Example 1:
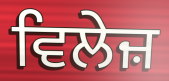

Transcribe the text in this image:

ਵਿਲੇਜ਼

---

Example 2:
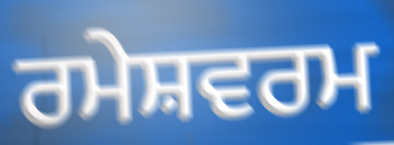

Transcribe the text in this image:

ਰਮੇਸ਼ਵਰਮ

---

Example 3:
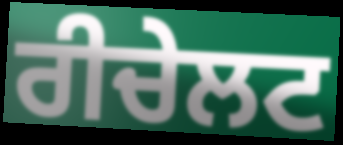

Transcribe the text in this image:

ਰੀਚੇਲਟ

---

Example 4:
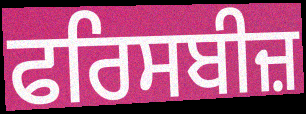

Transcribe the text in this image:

ਫਰਿਸਬੀਜ਼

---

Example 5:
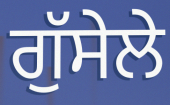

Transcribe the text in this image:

ਗੁੱਸੇਲੇ